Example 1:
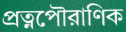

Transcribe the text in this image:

প্রত্নপৌরাণিক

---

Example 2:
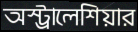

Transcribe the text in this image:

অস্ট্রালেশিয়ার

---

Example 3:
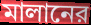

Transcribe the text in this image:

মালানের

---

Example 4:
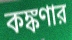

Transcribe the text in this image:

কঙ্কণার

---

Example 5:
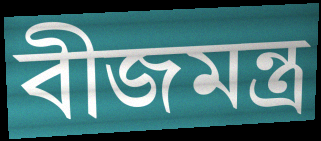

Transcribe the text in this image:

বীজমন্ত্র